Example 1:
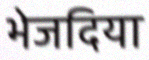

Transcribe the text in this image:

भेजदिया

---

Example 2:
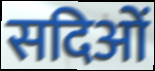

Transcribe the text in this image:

सदिओं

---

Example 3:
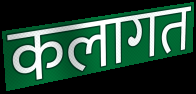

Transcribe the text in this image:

कलागत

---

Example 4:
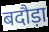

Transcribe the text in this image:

बदौड़ा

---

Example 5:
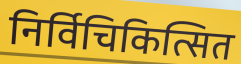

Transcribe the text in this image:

निर्विचिकित्सित